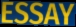
ESSAY